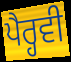
ਪੈਰ੍ਹਵੀ